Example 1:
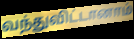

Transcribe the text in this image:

வந்துவிட்டானாம்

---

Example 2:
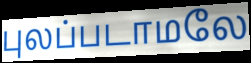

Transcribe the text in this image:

புலப்படாமலே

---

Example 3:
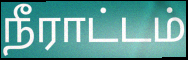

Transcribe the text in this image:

நீராட்டம்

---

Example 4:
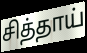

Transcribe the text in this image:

சித்தாய்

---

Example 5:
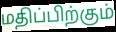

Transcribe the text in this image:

மதிப்பிற்கும்